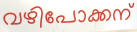
വഴിപോക്കന്